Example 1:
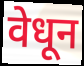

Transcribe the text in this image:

वेधून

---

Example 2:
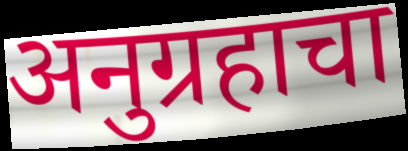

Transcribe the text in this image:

अनुग्रहाचा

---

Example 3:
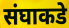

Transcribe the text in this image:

संघाकडे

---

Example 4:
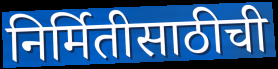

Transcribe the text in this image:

निर्मितीसाठीची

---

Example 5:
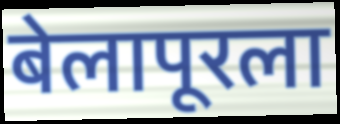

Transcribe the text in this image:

बेलापूरला